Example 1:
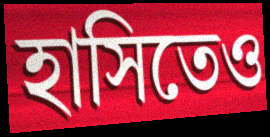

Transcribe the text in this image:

হাসিতেও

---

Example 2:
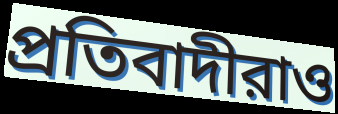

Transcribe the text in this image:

প্রতিবাদীরাও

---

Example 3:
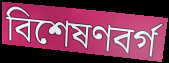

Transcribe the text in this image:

বিশেষণবর্গ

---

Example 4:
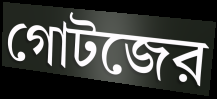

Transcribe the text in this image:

গোটজের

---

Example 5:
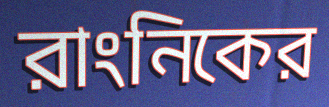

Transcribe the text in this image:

রাংনিকের